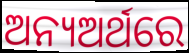
ଅନ୍ୟଅର୍ଥରେ